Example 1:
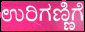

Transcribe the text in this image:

ಉರಿಗಣ್ಣಿಗೆ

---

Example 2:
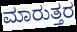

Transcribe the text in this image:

ಮಾರುತ್ತರ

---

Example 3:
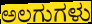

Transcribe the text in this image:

ಅಲಗುಗಳು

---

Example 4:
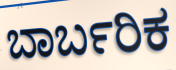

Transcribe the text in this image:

ಬಾರ್ಬರಿಕ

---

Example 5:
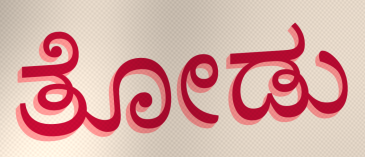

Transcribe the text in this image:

ತೋಡು